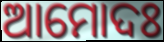
ଆମୋଦଃ